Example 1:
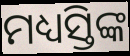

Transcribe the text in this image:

ମଧ୍ୟସ୍ତିଙ୍କ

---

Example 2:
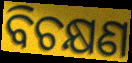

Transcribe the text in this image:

ବିଚକ୍ଷଣ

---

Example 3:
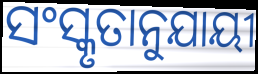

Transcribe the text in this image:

ସଂସ୍କୃତାନୁଯାୟୀ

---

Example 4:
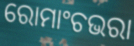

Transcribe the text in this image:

ରୋମାଂଚଭରା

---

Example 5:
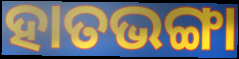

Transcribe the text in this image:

ହାତଭଙ୍ଗା